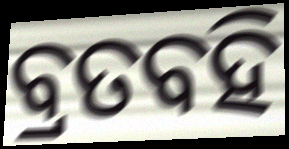
ବ୍ରତବହି